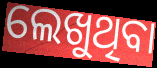
ଲେଖୁଥିବା